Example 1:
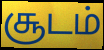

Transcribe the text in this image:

சூடம்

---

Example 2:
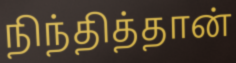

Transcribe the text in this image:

நிந்தித்தான்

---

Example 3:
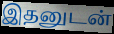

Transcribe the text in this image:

இதனுடன்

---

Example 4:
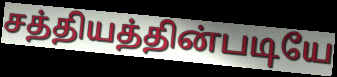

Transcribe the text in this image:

சத்தியத்தின்படியே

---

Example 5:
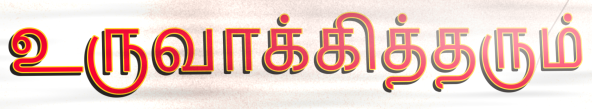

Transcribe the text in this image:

உருவாக்கித்தரும்